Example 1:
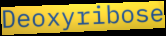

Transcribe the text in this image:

Deoxyribose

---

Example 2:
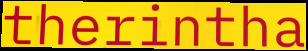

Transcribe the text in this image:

therintha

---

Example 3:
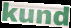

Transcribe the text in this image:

kund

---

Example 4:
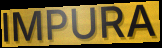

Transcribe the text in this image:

IMPURA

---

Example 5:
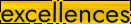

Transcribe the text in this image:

excellences